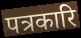
पत्रकारि